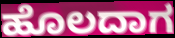
ಹೊಲದಾಗ